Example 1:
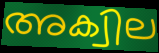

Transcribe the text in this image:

അക്വില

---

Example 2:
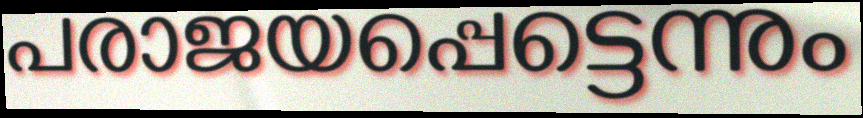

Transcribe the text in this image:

പരാജയപ്പെട്ടെന്നും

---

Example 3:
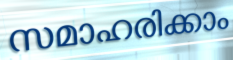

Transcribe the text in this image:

സമാഹരിക്കാം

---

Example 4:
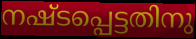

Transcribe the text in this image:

നഷ്ടപ്പെട്ടതിനു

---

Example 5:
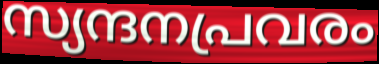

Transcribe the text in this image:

സ്യന്ദനപ്രവരം